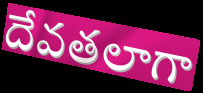
దేవతలాగా